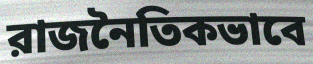
রাজনৈতিকভাবে